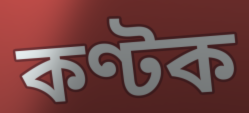
কণ্টক